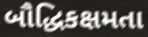
બૌદ્ધિકક્ષમતા